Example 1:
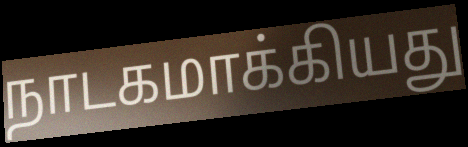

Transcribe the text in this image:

நாடகமாக்கியது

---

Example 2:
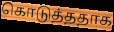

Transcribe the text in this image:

கொடுத்ததாக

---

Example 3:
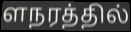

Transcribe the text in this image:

ளநரத்தில்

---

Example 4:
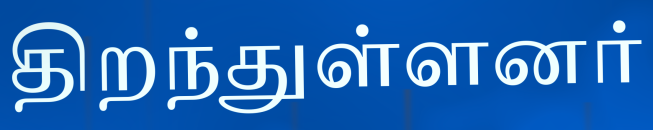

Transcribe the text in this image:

திறந்துள்ளனர்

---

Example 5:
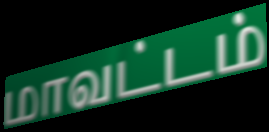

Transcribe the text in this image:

மாவட்டம்